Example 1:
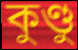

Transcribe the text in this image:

কুণ্ডু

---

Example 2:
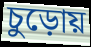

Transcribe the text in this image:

চুড়োয়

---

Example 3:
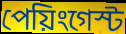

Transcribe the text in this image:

পেয়িংগেস্ট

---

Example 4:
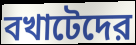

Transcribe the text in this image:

বখাটেদের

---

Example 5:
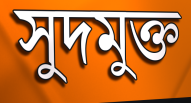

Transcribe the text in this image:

সুদমুক্ত